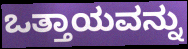
ಒತ್ತಾಯವನ್ನು